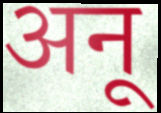
अनू